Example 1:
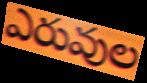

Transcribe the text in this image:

ఎరువుల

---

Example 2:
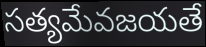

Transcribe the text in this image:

సత్యమేవజయతే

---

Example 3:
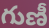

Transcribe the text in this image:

గుణీ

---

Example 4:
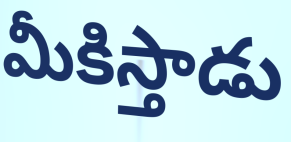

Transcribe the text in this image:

మీకిస్తాడు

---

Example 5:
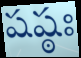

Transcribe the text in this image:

షష్ఠః